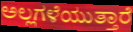
ಅಲ್ಲಗಳೆಯುತ್ತಾರೆ